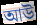
আউ